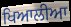
ਖਿਆਲੀਆ